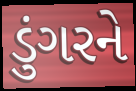
ડુંગરને